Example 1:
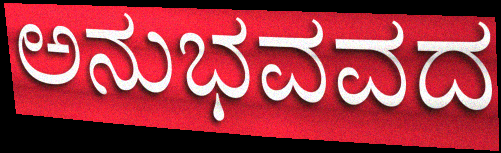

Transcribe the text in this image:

ಅನುಭವವದ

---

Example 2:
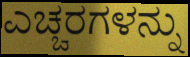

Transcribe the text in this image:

ಎಚ್ಚರಗಳನ್ನು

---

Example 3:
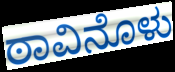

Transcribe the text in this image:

ಠಾವಿನೊಳು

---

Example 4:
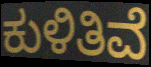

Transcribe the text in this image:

ಕುಳಿತಿವೆ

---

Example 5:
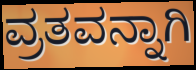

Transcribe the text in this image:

ವ್ರತವನ್ನಾಗಿ